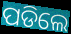
ପଡିଲେ